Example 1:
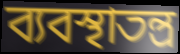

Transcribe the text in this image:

ব্যবস্থাতন্ত্র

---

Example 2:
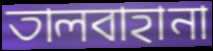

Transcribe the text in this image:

তালবাহানা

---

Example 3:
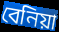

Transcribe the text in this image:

বেনিয়া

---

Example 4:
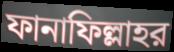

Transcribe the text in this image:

ফানাফিল্লাহর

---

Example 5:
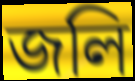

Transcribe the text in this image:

জলি